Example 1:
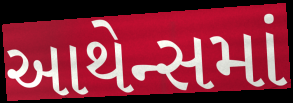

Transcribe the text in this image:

આથેન્સમાં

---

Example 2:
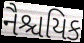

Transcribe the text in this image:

નૈશ્ચયિક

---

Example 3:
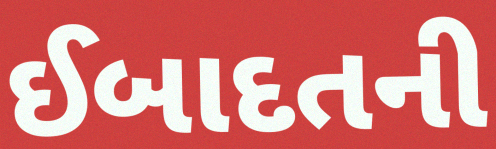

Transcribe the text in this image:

ઈબાદતની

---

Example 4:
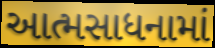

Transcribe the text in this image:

આત્મસાધનામાં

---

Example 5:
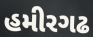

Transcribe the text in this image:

હમીરગઢ